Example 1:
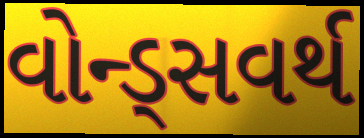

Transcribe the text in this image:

વોન્ડ્સવર્થ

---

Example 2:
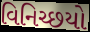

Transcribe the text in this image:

વિનિચ્છયો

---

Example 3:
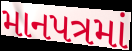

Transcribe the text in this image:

માનપત્રમાં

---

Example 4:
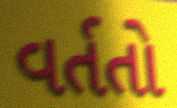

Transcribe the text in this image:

વર્તતો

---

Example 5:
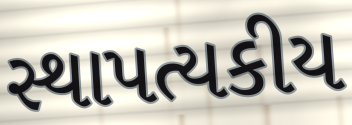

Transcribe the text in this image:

સ્થાપત્યકીય